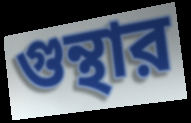
গুন্থার